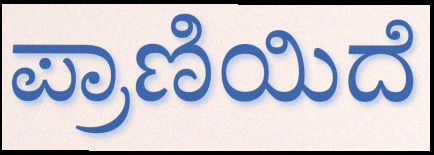
ಪ್ರಾಣಿಯಿದೆ